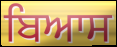
ਬਿਆਸ